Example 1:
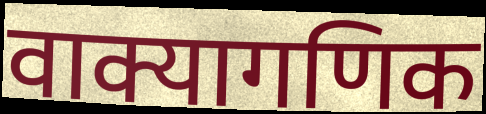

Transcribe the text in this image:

वाक्यागणिक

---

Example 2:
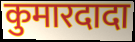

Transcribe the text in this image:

कुमारदादा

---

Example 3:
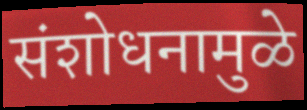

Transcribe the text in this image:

संशोधनामुळे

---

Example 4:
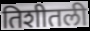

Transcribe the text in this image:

तिशीतली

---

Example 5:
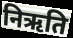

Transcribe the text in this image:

निऋति